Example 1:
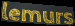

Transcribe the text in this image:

lemurs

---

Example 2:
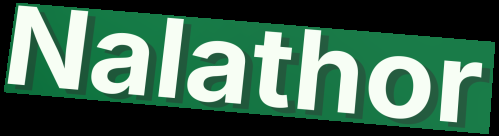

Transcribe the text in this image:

Nalathor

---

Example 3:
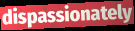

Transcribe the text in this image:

dispassionately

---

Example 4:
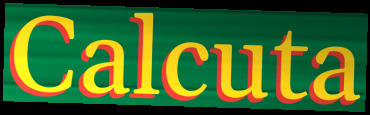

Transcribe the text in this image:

Calcuta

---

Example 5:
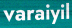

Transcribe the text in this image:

varaiyil